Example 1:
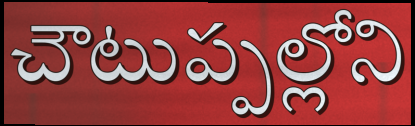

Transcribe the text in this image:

చౌటుప్పల్లోని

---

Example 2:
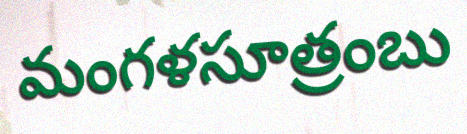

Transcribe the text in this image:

మంగళసూత్రంబు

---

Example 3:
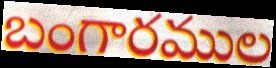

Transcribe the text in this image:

బంగారముల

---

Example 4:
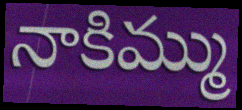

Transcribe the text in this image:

నాకిమ్ము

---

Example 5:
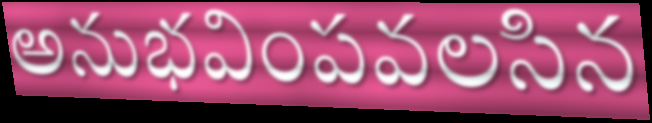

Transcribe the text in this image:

అనుభవింపవలసిన